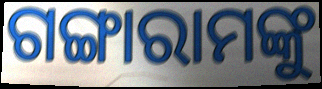
ଗଙ୍ଗାରାମଙ୍କୁ